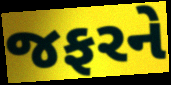
જફરને